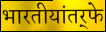
भारतीयांतर्फे